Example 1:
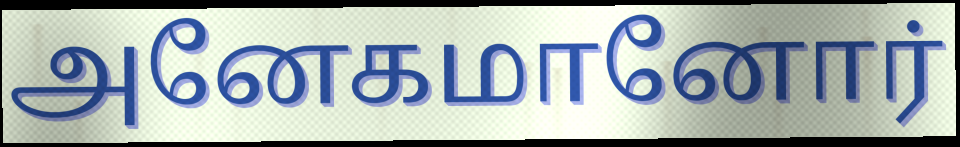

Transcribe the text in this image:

அனேகமானோர்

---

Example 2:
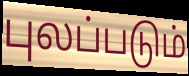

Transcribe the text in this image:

புலப்படும்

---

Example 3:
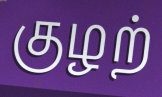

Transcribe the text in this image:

குழற்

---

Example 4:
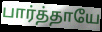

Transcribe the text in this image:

பார்த்தாயே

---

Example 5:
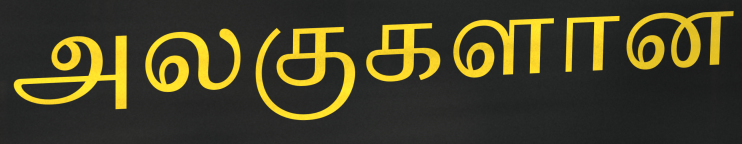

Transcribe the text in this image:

அலகுகளான